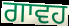
ਗਾਵਹ